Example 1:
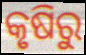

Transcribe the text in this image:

କୃଷିରୁ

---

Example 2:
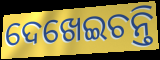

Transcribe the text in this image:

ଦେଖେଇଚନ୍ତି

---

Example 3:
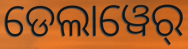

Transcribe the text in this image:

ଡେଲାୱେର୍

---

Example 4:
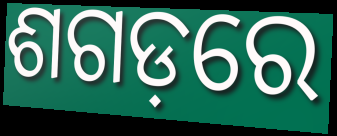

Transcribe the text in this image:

ଶଗଡ଼ରେ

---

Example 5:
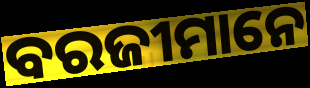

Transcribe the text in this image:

ବରଜୀମାନେ